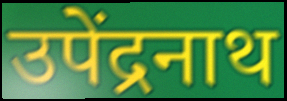
उपेंद्रनाथ